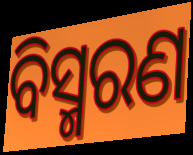
ବିସ୍ମରଣ